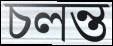
চলন্ত